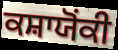
ਕਸ਼ਾਯੋਂਕੀ